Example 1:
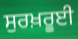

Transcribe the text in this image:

ਸੁਰਖ਼ਰੂਈ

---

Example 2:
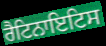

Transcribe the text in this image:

ਰੈਟਿਨਾਇਟਿਸ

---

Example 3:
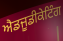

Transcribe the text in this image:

ਐਡਜੂਡੀਕੇਟਿੰਗ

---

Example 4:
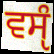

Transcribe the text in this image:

ਵਸੵੰ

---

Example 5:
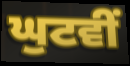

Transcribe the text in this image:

ਘੁਟਵੀਂ